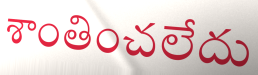
శాంతించలేదు